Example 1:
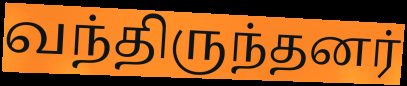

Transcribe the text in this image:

வந்திருந்தனர்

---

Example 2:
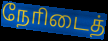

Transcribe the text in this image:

நேரிடைத்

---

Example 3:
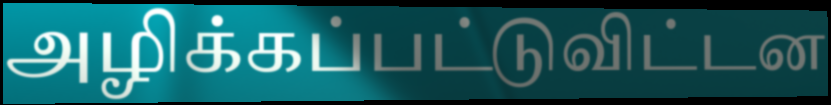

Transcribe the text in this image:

அழிக்கப்பட்டுவிட்டன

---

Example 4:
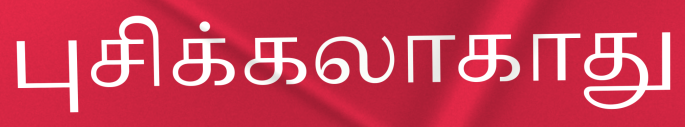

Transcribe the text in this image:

புசிக்கலாகாது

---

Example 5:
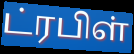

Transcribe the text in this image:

ட்ரபிள்